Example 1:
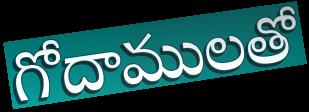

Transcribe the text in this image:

గోదాములతో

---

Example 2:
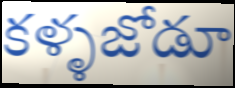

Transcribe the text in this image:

కళ్ళజోడూ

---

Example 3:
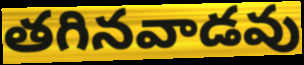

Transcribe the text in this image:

తగినవాడవు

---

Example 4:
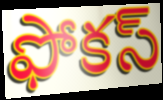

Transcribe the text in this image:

ఫోకస్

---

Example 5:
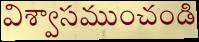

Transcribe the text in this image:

విశ్వాసముంచండి